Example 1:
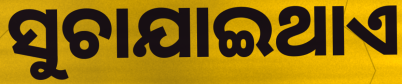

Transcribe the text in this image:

ସୁଚାଯାଇଥାଏ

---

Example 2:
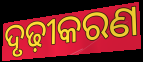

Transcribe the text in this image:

ଦୃଢ଼ୀକରଣ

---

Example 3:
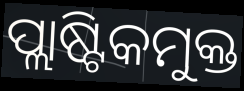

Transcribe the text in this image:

ପ୍ଲାଷ୍ଟିକମୁକ୍ତ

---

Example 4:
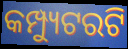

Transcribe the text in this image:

କମ୍ପ୍ୟୁଟରଟି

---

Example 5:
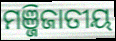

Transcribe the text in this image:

ମଞ୍ଜିଜାତୀୟ